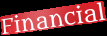
Financial